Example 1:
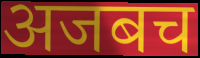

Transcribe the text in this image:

अजबच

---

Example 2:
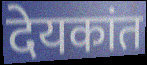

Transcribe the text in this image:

देयकांत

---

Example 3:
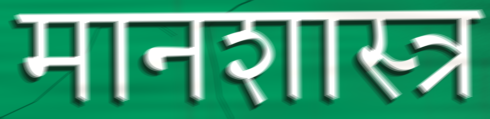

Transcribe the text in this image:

मानशास्त्र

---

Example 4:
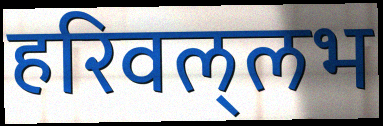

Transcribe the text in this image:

हरिवल्लभ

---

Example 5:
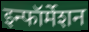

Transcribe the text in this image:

इन्फॉर्मेशन